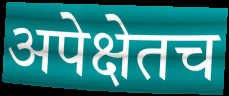
अपेक्षेतच